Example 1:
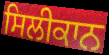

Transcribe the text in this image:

ਸਿਲੀਕਾਨ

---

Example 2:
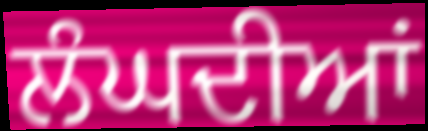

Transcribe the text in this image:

ਲੰਘਦੀਆਂ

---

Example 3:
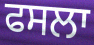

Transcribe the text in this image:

ਫਸਲਾ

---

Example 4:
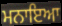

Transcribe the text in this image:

ਮਨਾਇਆ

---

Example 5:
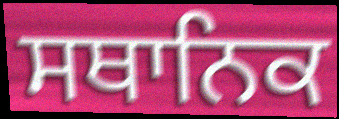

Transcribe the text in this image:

ਸਥਾਨਿਕ